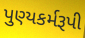
પુણ્યકર્મરૂપી